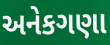
અનેકગણા